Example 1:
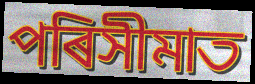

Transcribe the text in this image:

পৰিসীমাত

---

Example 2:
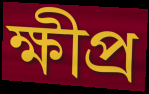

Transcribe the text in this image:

ক্ষীপ্ৰ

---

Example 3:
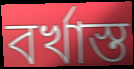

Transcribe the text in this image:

বৰ্খাস্ত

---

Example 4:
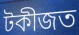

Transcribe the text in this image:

টকীজত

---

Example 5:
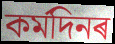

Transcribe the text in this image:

কৰ্মদিনৰ